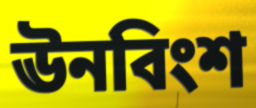
ঊনবিংশ